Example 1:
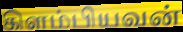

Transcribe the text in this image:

கிளம்பியவன்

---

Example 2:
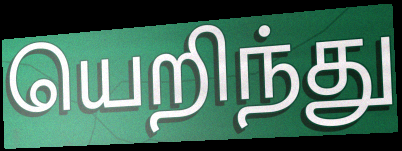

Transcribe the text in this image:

யெறிந்து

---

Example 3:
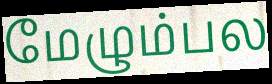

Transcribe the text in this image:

மேழும்பல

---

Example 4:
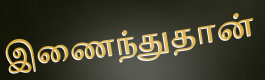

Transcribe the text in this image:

இணைந்துதான்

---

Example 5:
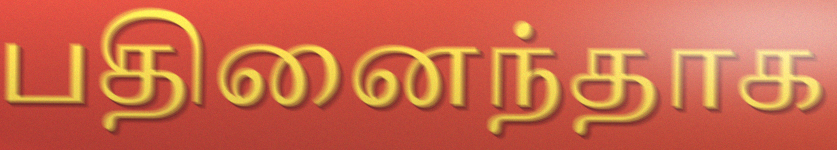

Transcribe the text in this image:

பதினைந்தாக